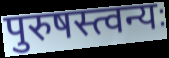
पुरुषस्त्वन्यः